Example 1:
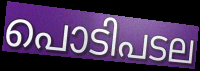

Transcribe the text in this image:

പൊടിപടല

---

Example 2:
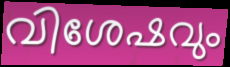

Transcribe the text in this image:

വിശേഷവും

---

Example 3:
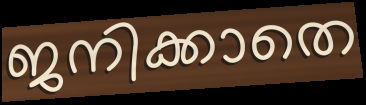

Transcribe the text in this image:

ജനിക്കാതെ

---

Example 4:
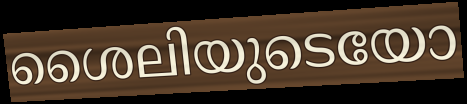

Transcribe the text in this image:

ശൈലിയുടെയോ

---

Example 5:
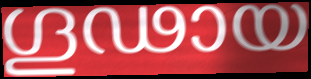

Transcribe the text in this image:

ഗൂഢായ